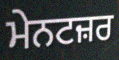
ਮੇਨਟਜ਼ਰ